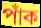
পাঁক